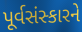
પૂર્વસંસ્કારને